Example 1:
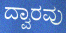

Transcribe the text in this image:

ದ್ವಾರವು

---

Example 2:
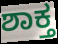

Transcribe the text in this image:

ಶಾಕ್ತ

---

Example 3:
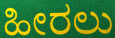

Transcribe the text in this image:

ಹೀರಲು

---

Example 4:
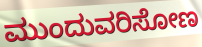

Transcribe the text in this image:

ಮುಂದುವರಿಸೋಣ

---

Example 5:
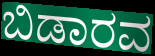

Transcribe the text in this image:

ಬಿಡಾರವ